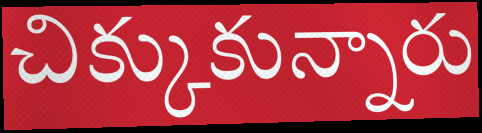
చిక్కుకున్నారు